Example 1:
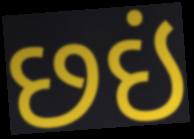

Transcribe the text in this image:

છઇં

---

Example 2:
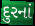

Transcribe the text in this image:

દુરનાં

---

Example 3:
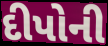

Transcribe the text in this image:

દીપોની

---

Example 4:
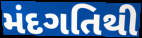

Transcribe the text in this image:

મંદગતિથી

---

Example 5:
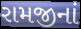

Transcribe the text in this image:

રામજીનાં